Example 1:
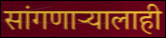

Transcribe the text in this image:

सांगणाऱ्यालाही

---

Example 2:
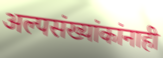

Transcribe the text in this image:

अल्पसंख्यांकांनाही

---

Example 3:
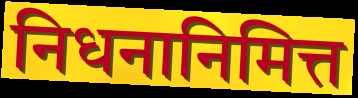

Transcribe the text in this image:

निधनानिमित्त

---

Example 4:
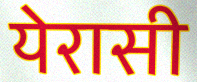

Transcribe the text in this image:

येरासी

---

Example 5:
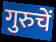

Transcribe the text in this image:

गुरुचें